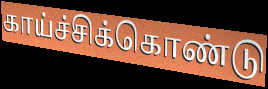
காய்ச்சிக்கொண்டு